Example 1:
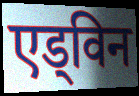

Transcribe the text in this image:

एड्विन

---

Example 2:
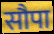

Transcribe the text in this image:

सौपा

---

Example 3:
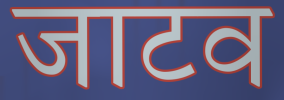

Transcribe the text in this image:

जाटव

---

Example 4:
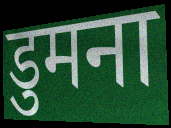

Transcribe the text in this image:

डुमना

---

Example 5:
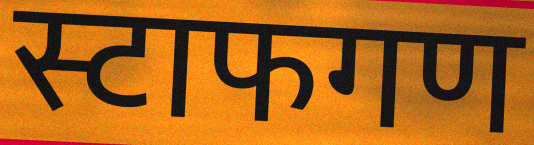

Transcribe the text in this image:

स्टाफगण